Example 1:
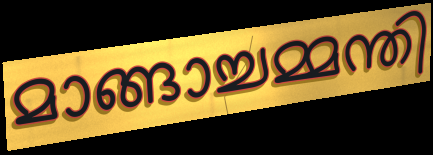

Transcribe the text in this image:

മാങ്ങാച്ചമ്മന്തി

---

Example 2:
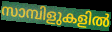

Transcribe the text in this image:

സാമ്പിളുകളിൽ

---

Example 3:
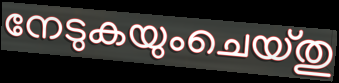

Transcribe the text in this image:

നേടുകയുംചെയ്തു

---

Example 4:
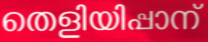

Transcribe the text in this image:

തെളിയിപ്പാന്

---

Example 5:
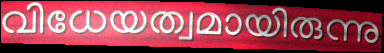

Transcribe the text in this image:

വിധേയത്വമായിരുന്നു